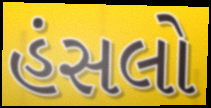
હંસલો